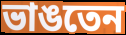
ভাঙতেন